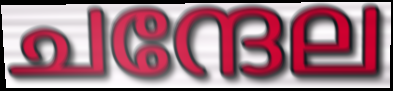
ചന്ദേല